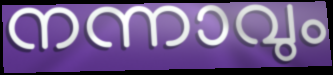
നന്നാവും